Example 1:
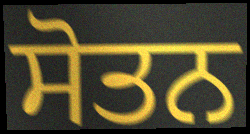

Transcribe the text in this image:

ਸੋਤਨ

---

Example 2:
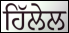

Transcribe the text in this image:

ਹਿੱਲੇਲ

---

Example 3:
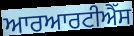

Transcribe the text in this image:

ਆਰਆਰਟੀਐੱਸ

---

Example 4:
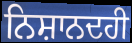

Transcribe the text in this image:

ਨਿਸ਼ਾਨਦਹੀ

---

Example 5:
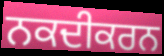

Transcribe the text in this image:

ਨਕਦੀਕਰਨ